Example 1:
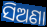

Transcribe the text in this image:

ସିଅଣା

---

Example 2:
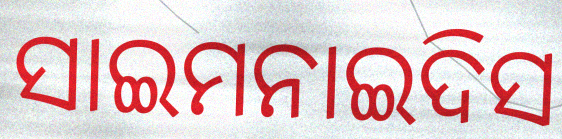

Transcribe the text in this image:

ସାଇମନାଇଦିସ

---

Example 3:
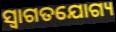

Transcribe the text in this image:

ସ୍ବାଗତଯୋଗ୍ୟ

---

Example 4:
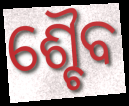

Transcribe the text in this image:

ଶ୍ଚୈବ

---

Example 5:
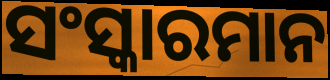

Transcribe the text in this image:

ସଂସ୍କାରମାନ